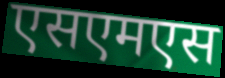
एसएमएस